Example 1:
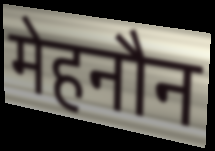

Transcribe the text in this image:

मेहनौन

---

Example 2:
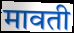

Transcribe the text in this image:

मावती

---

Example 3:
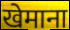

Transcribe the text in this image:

खेमाना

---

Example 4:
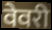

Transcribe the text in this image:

वेवरी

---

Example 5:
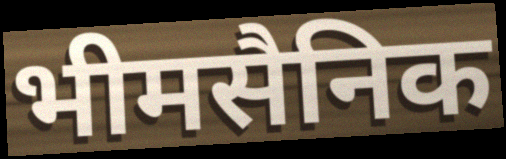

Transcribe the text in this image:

भीमसैनिक